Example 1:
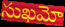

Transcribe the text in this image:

సుఖమో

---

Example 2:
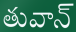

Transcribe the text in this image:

తువాన్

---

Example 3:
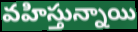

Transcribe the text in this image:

వహిస్తున్నాయి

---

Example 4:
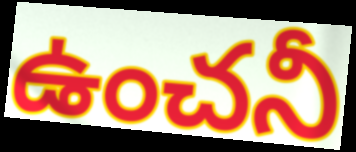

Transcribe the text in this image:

ఉంచనీ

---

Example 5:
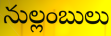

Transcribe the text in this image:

నుల్లంబులు